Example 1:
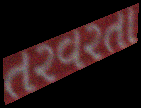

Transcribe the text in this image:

તરવરતા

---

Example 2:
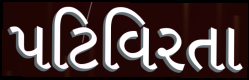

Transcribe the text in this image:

પટિવિરતા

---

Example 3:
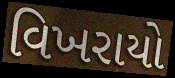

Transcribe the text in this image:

વિખરાયો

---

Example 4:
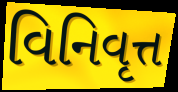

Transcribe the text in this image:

વિનિવૃત્ત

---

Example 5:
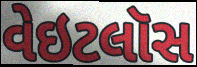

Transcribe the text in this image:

વેઇટલૉસ